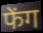
फेंग